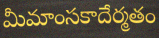
మీమాంసకాదేర్మతం